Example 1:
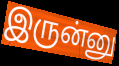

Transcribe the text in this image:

இருன்னு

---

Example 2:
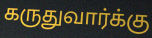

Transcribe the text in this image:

கருதுவார்க்கு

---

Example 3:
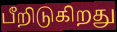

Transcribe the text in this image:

பீறிடுகிறது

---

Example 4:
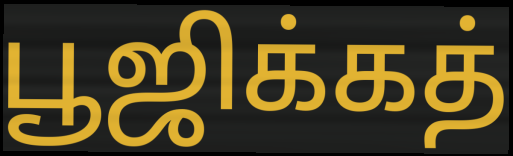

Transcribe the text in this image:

பூஜிக்கத்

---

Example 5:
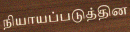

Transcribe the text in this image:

நியாயப்படுத்தின